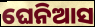
ଘେନିଆସ